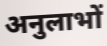
अनुलाभों